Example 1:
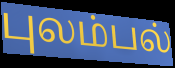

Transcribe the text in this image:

புலம்பல்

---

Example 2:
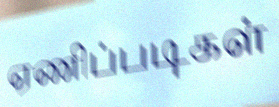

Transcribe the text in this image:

ஏணிப்படிகள்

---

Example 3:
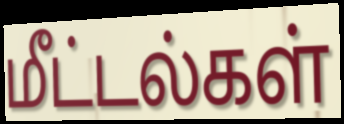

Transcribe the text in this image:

மீட்டல்கள்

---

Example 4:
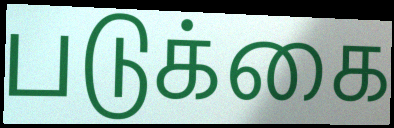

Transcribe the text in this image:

படுக்கை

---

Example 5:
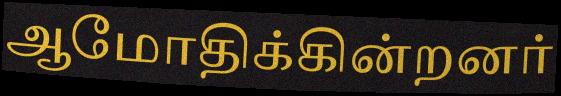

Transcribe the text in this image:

ஆமோதிக்கின்றனர்